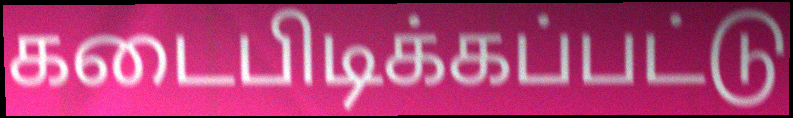
கடைபிடிக்கப்பட்டு